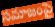
సమాజంపై